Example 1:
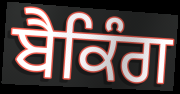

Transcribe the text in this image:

ਬੈਕਿੰਗ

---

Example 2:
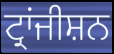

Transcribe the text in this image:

ਟ੍ਰਾਂਜੀਸ਼ਨ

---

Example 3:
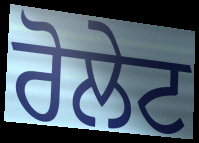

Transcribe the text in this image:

ਰੋਲੇਟ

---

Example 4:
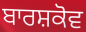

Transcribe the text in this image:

ਬਾਰਸ਼ਕੋਵ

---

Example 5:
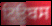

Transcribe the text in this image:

ਟਿਊਬਸ